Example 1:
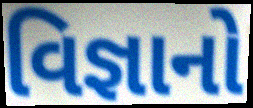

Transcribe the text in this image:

વિજ્ઞાનો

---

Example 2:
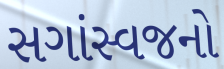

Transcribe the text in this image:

સગાંસ્વજનો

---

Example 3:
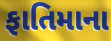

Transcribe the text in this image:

ફાતિમાના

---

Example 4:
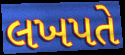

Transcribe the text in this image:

લખપતે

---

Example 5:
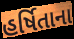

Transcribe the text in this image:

હર્ષિતાના